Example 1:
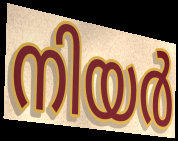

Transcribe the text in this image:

നിയർ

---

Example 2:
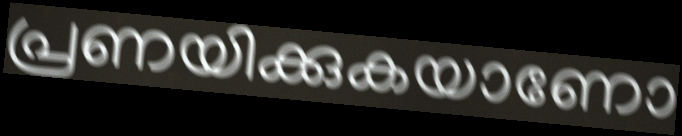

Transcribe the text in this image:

പ്രണയിക്കുകയാണോ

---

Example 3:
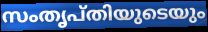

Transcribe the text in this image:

സംതൃപ്തിയുടെയും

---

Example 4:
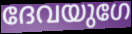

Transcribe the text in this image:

ദേവയുഗേ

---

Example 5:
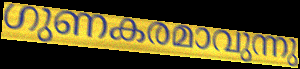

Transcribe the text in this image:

ഗുണകരമാവുന്നു